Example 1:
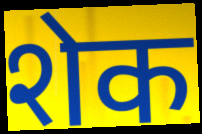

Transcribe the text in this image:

शेक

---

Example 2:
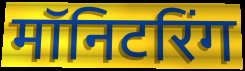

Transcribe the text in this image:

मॉनिटरिंग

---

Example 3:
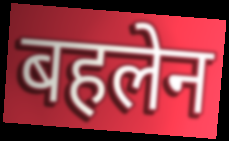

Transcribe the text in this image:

बहलेन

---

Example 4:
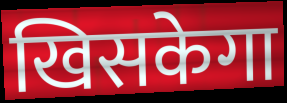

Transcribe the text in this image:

खिसकेगा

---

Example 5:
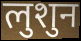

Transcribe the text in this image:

लुशुन